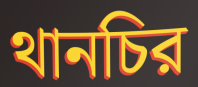
থানচির